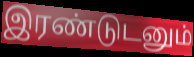
இரண்டுடனும்